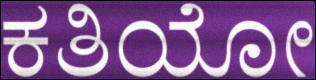
ಕತಿಯೋ